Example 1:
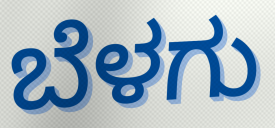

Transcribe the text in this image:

ಬೆಳಗು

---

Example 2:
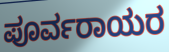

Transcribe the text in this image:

ಪೂರ್ವರಾಯರ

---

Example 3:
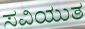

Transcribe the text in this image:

ಸವಿಯುತ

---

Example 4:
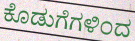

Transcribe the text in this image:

ಕೊಡುಗೆಗಳಿಂದ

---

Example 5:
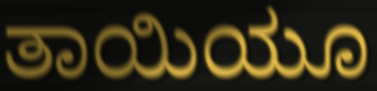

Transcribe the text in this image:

ತಾಯಿಯೂ